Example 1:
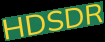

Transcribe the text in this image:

HDSDR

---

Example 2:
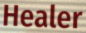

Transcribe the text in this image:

Healer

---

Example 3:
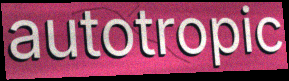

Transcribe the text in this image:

autotropic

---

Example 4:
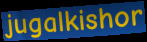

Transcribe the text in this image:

jugalkishor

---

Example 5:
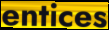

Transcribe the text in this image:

entices